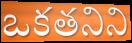
ఒకతనిని